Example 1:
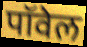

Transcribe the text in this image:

पॉवेल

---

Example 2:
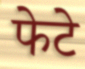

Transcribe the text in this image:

फेटे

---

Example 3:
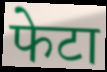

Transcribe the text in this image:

फेटा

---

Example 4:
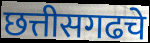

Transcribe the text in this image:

छत्तीसगढचे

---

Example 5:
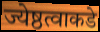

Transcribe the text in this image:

ज्येष्ठत्वाकडे